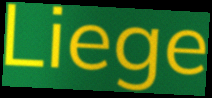
Liege